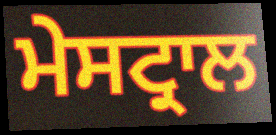
ਮੇਸਟ੍ਰਾਲ